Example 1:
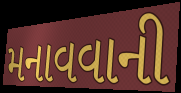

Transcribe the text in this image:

મનાવવાની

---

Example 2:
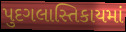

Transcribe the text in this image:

પુદગલાસ્તિકાયમાં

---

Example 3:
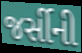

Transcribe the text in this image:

જર્સીની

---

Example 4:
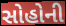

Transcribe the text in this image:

સોહોની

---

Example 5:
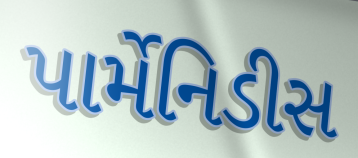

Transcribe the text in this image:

પાર્મેનિડીસ